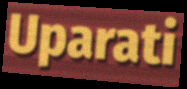
Uparati